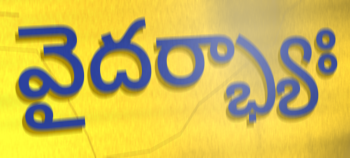
వైదర్భ్యాః